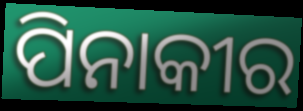
ପିନାକୀର